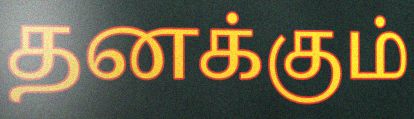
தனக்கும்